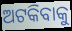
ଅଟକିବାକୁ